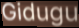
Gidugu